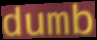
dumb